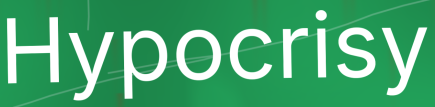
Hypocrisy